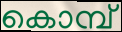
കൊമ്പ്